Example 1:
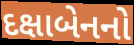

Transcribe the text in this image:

દક્ષાબેનનો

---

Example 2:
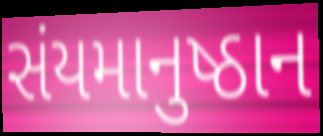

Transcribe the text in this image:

સંયમાનુષ્ઠાન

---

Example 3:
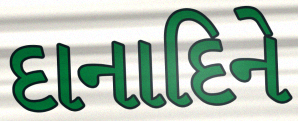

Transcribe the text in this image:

દાનાદિને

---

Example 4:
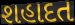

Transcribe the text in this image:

શહાદત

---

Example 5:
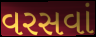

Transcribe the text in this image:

વરસવાં